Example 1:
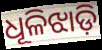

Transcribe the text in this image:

ଧୂଳିଝାଡ଼ି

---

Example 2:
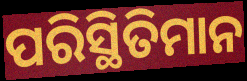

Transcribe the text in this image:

ପରିସ୍ଥିତିମାନ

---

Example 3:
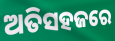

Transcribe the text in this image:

ଅତିସହଜରେ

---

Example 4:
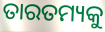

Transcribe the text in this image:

ତାରତମ୍ୟକୁ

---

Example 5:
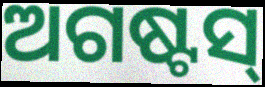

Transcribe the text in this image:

ଅଗଷ୍ଟସ୍